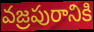
వజ్రపురానికి